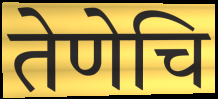
तेणेचि